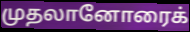
முதலானோரைக்